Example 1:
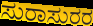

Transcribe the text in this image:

ಸುರಾಸುರರ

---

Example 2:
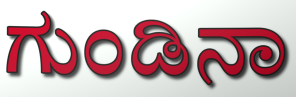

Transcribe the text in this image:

ಗುಂಡಿನಾ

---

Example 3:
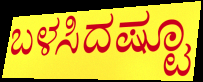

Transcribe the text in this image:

ಬಳಸಿದಷ್ಟೂ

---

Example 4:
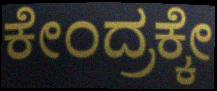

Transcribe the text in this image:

ಕೇಂದ್ರಕ್ಕೇ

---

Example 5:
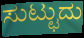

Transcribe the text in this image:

ಸುಟ್ಟುದು